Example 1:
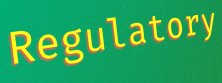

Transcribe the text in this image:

Regulatory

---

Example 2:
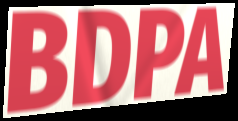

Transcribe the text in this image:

BDPA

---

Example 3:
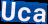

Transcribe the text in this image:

Uca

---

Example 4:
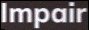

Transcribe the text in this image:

Impair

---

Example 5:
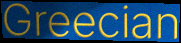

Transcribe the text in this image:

Greecian